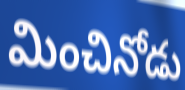
మించినోడు